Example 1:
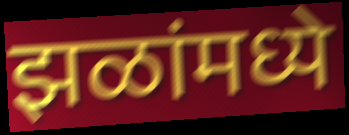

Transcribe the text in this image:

झळांमध्ये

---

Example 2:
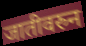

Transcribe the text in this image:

जातीवरुन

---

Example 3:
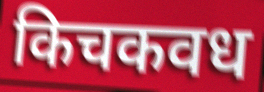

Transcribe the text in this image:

किचकवध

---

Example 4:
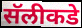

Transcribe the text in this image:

सॅलीकडे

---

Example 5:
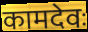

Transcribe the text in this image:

कामदेवः